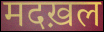
मदख़ल